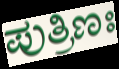
ಪುತ್ರಿಣಃ